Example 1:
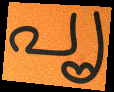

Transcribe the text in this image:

പൄ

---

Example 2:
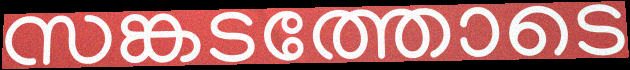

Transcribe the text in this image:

സങ്കടത്തോടെ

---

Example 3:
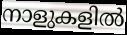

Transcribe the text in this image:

നാളുകളിൽ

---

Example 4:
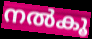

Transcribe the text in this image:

നൽകൂ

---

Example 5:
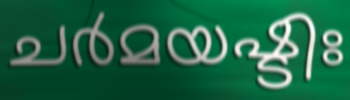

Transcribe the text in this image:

ചർമയഷ്ടിഃ